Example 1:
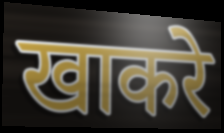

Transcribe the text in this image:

खाकरे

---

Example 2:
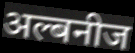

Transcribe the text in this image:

अल्‍बनीज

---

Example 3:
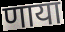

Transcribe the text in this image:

णाया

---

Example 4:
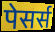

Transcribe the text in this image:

पेसर्स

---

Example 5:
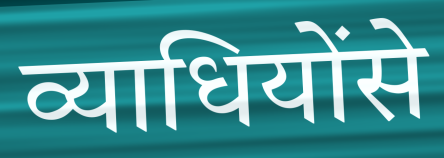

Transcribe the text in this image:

व्याधियोंसे